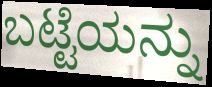
ಬಟ್ಟೆಯನ್ನು